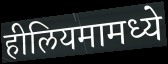
हीलियमामध्ये